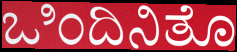
ಒಿಂದಿನಿತೊ